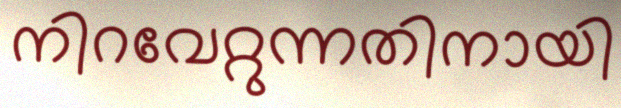
നിറവേറ്റുന്നതിനായി